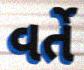
વર્તે